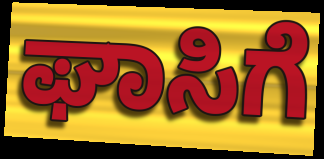
ಘಾಸಿಗೆ